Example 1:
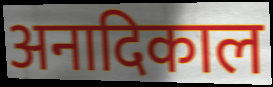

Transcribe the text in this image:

अनादिकाल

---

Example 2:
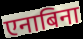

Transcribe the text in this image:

एनाबिना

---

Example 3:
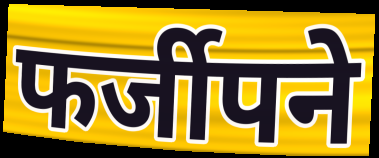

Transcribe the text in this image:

फर्जीपने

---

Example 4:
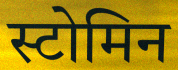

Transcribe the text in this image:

स्टोमिन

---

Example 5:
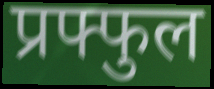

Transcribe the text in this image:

प्रफ्फुल